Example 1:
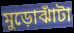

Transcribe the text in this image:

মুড়োঝাঁটা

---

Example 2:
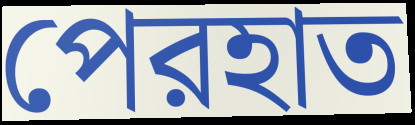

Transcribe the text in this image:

পেরহাত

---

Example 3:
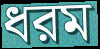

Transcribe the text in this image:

ধরম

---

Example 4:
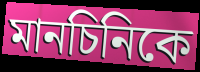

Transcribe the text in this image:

মানচিনিকে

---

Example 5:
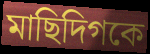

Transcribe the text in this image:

মাছিদিগকে